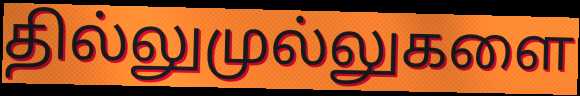
தில்லுமுல்லுகளை